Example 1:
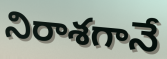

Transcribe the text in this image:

నిరాశగానే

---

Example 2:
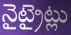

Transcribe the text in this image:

నైట్రైట్లు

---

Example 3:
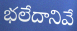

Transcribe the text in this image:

భలేదానివే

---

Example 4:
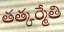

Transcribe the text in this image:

తత్కర్మేతి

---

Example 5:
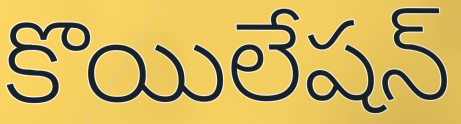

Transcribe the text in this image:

కొయిలేషన్